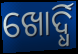
ଖୋର୍ଦ୍ଧି